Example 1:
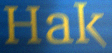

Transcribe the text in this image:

Hak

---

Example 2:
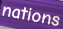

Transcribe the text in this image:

nations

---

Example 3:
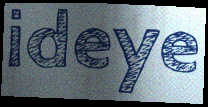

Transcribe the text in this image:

ideye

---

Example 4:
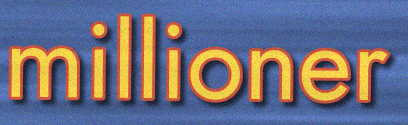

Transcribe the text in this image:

millioner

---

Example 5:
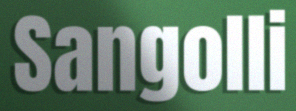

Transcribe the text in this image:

Sangolli